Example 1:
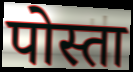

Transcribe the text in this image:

पोस्ता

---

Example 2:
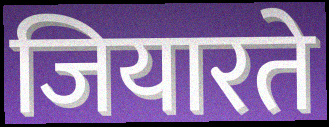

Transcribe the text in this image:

जियारते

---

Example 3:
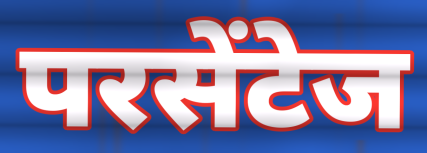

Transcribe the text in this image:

परसेंटेज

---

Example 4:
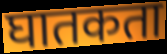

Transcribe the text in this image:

घातकता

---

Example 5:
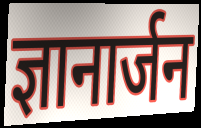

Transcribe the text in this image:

ज्ञानार्जन